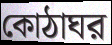
কোঠাঘর